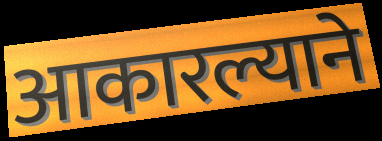
आकारल्याने